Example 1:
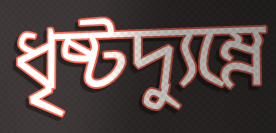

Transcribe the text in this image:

ধৃষ্টদ্যুম্নে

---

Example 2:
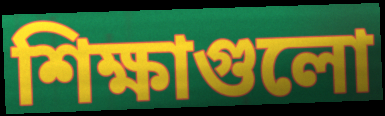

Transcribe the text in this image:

শিক্ষাগুলো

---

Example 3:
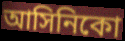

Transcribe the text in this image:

আসিনিকো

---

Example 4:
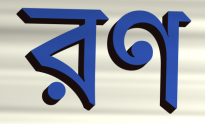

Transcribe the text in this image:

রণ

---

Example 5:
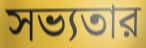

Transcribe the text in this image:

সভ্যতার